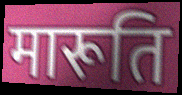
मारूति